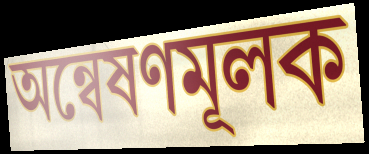
অন্বেষণমূলক